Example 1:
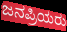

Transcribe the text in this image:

ಜನಪ್ರಿಯರು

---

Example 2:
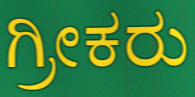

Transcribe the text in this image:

ಗ್ರೀಕರು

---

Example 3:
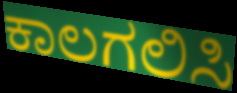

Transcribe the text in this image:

ಕಾಲಗಲಿಸಿ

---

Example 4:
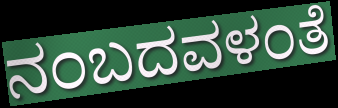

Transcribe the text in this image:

ನಂಬದವಳಂತೆ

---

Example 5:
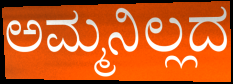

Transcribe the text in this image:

ಅಮ್ಮನಿಲ್ಲದ